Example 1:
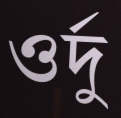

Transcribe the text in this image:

ওর্দু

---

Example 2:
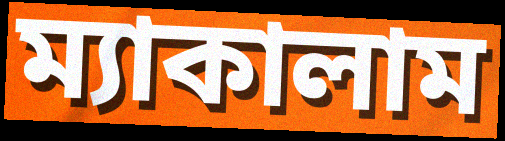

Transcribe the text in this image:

ম্যাকালাম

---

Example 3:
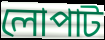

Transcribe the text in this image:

লোপাট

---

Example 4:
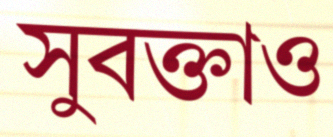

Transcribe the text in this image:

সুবক্তাও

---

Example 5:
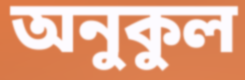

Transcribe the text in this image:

অনুকুল